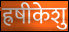
ह्रषीकेशु